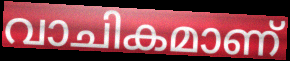
വാചികമാണ്